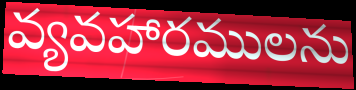
వ్యవహారములను